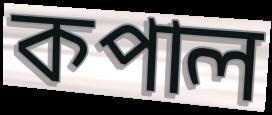
কপাল